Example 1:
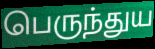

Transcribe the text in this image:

பெருந்துய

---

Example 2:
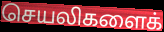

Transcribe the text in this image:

செயலிகளைக்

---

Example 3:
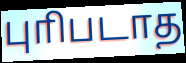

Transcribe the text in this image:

புரிபடாத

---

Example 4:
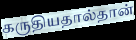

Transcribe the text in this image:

கருதியதால்தான்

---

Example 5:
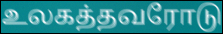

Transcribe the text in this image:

உலகத்தவரோடு